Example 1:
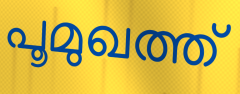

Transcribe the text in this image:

പൂമുഖത്ത്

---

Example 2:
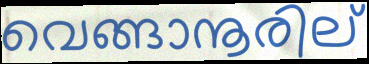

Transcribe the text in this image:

വെങ്ങാനൂരില്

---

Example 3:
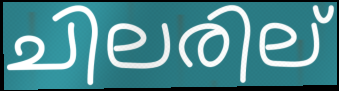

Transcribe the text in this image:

ചിലരില്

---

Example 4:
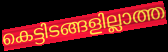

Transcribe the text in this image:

കെട്ടിടങ്ങളില്ലാത്ത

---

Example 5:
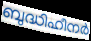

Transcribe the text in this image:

ബുദ്ധിഹീനർ